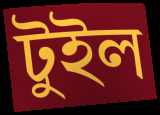
টুইল